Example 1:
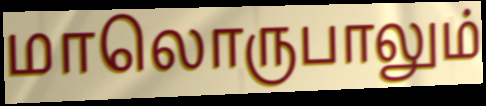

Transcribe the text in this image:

மாலொருபாலும்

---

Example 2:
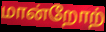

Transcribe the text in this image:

மான்றோற்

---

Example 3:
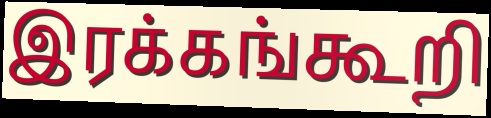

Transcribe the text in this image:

இரக்கங்கூறி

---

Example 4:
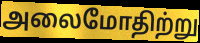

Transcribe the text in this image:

அலைமோதிற்று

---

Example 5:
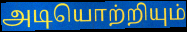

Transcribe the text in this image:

அடியொற்றியும்